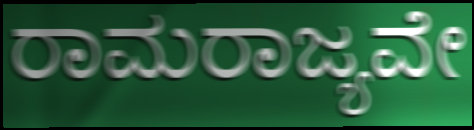
ರಾಮರಾಜ್ಯವೇ